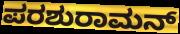
ಪರಶುರಾಮನ್